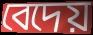
বেদেয়